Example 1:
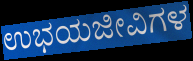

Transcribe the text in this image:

ಉಭಯಜೀವಿಗಳ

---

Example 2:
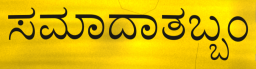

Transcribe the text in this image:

ಸಮಾದಾತಬ್ಬಂ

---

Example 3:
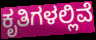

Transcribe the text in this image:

ಕೃತಿಗಳಲ್ಲಿವೆ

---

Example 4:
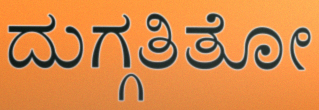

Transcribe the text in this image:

ದುಗ್ಗತಿತೋ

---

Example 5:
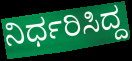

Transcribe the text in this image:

ನಿರ್ಧರಿಸಿದ್ದ